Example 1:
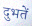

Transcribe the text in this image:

दुभतें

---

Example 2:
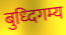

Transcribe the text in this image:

बुध्दिगम्य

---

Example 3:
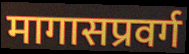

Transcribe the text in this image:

मागासप्रवर्ग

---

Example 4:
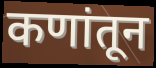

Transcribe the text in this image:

कणांतून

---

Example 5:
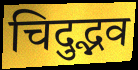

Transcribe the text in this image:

चिदुद्भव